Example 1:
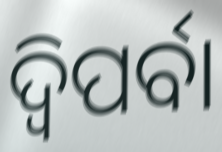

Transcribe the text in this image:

ଦ୍ଵିପର୍ବା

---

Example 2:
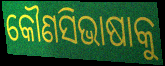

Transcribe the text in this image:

କୌଣସିଭାଷାକୁ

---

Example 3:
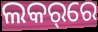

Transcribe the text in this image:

ଲକର୍‌ରେ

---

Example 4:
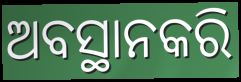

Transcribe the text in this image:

ଅବସ୍ଥାନକରି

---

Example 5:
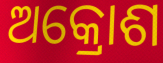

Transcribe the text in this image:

ଅକ୍ରୋଶ